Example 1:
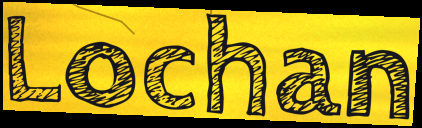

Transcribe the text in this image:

Lochan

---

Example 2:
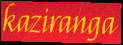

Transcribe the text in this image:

kaziranga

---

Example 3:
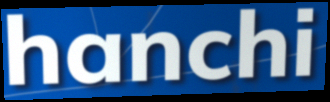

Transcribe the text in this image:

hanchi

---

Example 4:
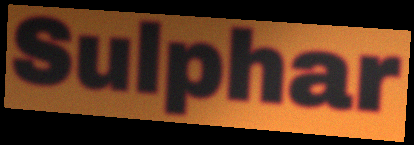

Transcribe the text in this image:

Sulphar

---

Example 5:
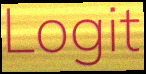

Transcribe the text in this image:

Logit